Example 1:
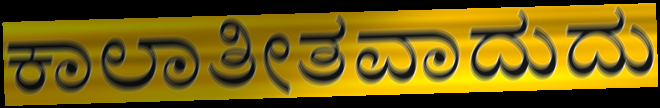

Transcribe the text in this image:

ಕಾಲಾತೀತವಾದುದು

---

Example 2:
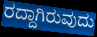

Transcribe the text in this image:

ರದ್ದಾಗಿರುವುದು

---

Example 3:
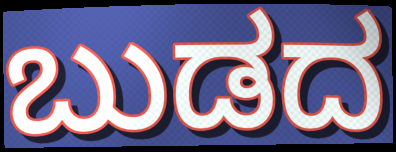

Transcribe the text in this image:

ಬುಡದ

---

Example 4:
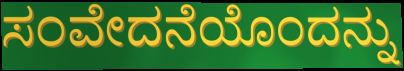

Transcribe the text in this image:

ಸಂವೇದನೆಯೊಂದನ್ನು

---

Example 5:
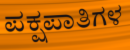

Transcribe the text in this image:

ಪಕ್ಷಪಾತಿಗಳ